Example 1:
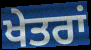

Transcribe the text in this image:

ਖੇਤਰਾਂ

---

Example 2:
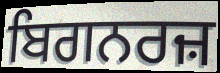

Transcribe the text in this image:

ਬਿਗਨਰਜ਼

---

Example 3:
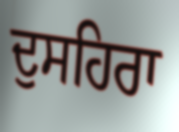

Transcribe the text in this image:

ਦੁਸਹਿਰਾ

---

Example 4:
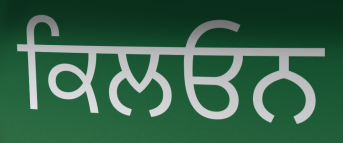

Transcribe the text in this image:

ਕਿਲਓਨ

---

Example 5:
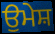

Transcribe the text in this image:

ਉਮੇਸ਼